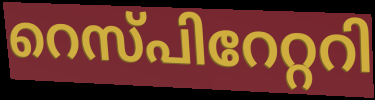
റെസ്പിറേറ്ററി